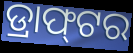
ଡ୍ରାଫ୍‌ଟର